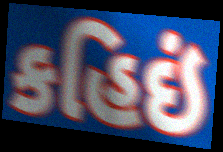
કહિઇં